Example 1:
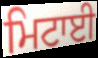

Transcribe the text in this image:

ਮਿਟਾਈ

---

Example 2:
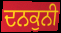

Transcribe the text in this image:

ਦਨਕੁਨੀ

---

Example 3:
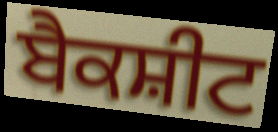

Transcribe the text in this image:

ਬੈਕਸ਼ੀਟ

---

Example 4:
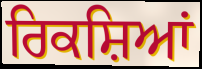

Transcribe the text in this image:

ਰਿਕਸ਼ਿਆਂ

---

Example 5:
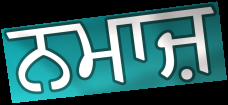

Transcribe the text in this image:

ਨਮਾਜ਼